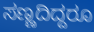
ಸಣ್ಣದಿದ್ದರೂ